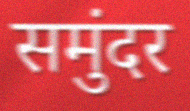
समुंदर